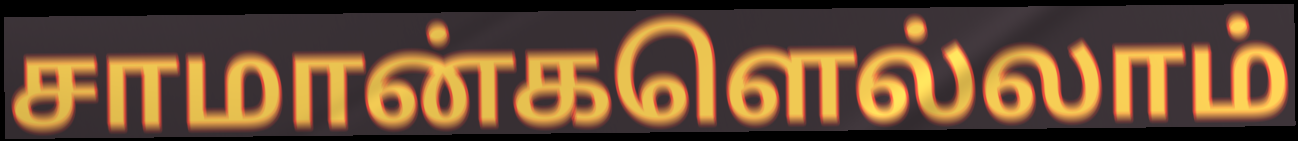
சாமான்களெல்லாம்